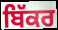
ਬਿੱਕਰ